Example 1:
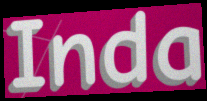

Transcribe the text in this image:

Inda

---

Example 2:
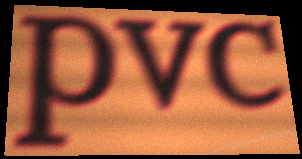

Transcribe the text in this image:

pvc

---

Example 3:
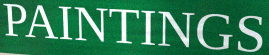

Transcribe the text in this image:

PAINTINGS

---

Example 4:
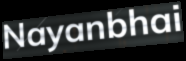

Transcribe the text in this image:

Nayanbhai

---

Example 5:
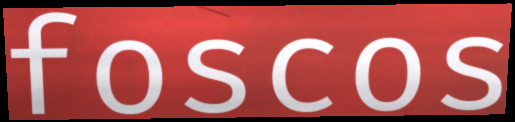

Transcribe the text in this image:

foscos